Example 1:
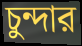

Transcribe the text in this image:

চুন্দার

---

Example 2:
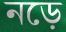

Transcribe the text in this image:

নড়ে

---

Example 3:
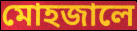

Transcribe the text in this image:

মোহজালে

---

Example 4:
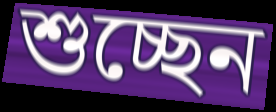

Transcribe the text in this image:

শুচ্ছেন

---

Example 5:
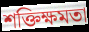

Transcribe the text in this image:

শক্তিক্ষমতা